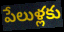
పేలుళ్లకు